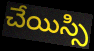
చేయిస్సి